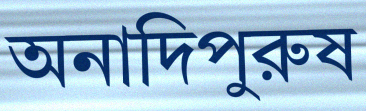
অনাদিপুরুষ